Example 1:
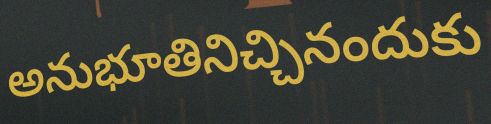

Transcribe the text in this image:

అనుభూతినిచ్చినందుకు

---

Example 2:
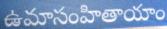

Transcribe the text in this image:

ఉమాసంహితాయాం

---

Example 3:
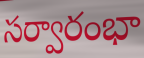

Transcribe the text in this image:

సర్వారంభా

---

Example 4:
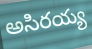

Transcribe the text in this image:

అసిరయ్య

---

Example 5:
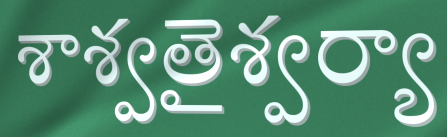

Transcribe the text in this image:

శాశ్వతైశ్వర్యా